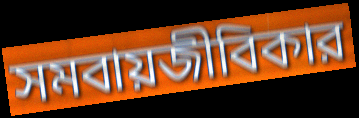
সমবায়জীবিকার